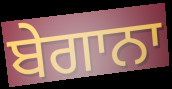
ਬੇਗਾਨਾ